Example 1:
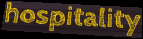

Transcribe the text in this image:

hospitality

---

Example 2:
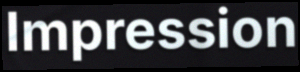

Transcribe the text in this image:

Impression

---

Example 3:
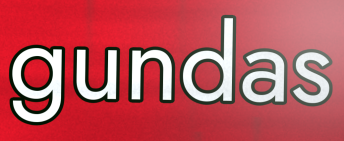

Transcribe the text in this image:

gundas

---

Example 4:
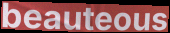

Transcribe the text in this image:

beauteous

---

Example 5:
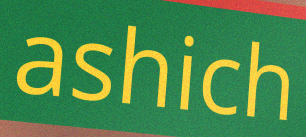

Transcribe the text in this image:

ashich